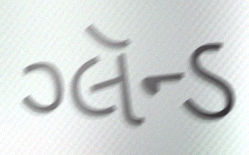
ગ્લૅન્ડ